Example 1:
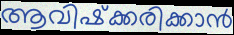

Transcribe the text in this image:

ആവിഷ്‌ക്കരിക്കാൻ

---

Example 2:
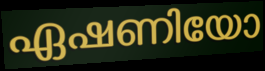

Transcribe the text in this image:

ഏഷണിയോ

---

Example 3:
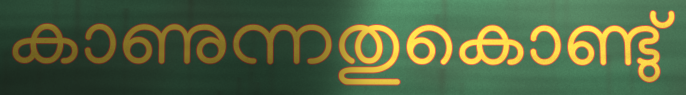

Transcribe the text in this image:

കാണുന്നതുകൊണ്ടു്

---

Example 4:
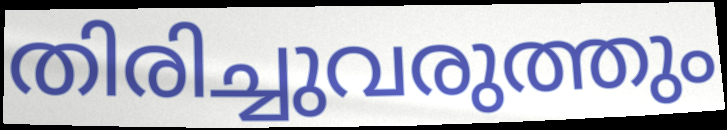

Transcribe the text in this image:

തിരിച്ചുവരുത്തും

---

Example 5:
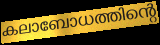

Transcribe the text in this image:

കലാബോധത്തിന്റെ